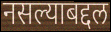
नसल्याबद्दल